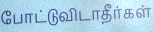
போட்டுவிடாதீர்கள்